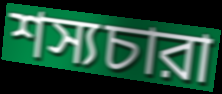
শস্যচারা